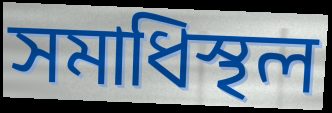
সমাধিস্থল